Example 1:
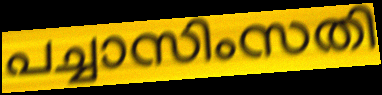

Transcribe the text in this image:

പച്ചാസിംസതി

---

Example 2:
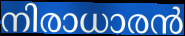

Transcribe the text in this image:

നിരാധാരൻ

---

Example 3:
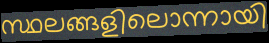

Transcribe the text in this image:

സ്ഥലങ്ങളിലൊന്നായി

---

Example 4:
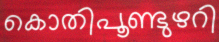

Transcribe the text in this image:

കൊതിപൂണ്ടുഴറി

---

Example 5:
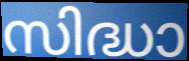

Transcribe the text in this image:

സിദ്ധാ